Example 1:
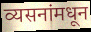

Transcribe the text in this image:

व्यसनांमधून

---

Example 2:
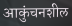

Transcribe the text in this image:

आकुंचनशील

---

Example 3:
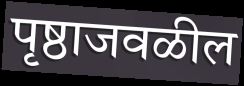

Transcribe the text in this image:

पृष्ठाजवळील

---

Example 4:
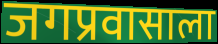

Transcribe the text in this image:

जगप्रवासाला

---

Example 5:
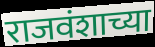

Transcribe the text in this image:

राजवंशाच्या